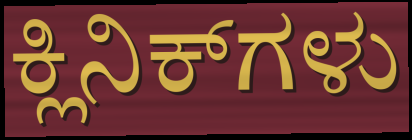
ಕ್ಲಿನಿಕ್‌ಗಳು